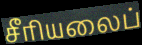
சீரியலைப்